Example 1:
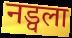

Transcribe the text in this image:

नड्वला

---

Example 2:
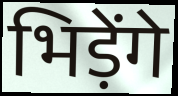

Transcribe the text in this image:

भिड़ेंगे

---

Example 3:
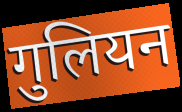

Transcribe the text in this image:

गुलियन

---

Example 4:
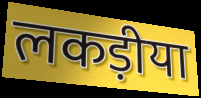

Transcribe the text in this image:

लकड़ीया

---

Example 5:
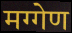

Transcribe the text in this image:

मग्गेण